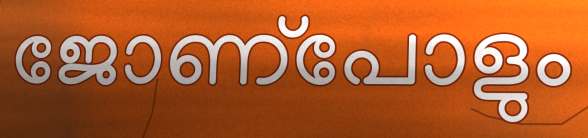
ജോണ്പോളും